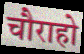
चौराहो